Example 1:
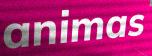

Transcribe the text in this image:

animas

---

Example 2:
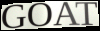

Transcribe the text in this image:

GOAT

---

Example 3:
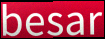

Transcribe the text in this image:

besar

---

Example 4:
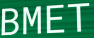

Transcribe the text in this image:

BMET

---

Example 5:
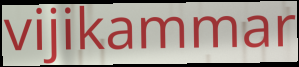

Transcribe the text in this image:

vijikammar